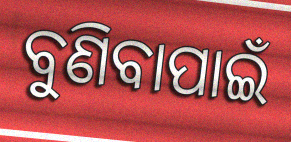
ବୁଣିବାପାଇଁ